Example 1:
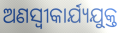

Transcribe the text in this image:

ଅଣସ୍ବୀକାର୍ଯ୍ୟଯୁକ୍ତ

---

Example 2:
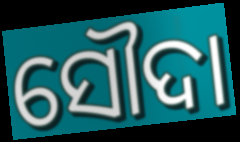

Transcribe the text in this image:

ସୌଦା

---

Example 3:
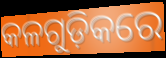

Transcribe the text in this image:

କଳଗୁଡ଼ିକରେ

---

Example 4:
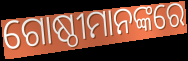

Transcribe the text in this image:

ଗୋଷ୍ଠୀମାନଙ୍କରେ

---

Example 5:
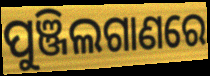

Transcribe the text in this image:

ପୁଞ୍ଜିଲଗାଣରେ